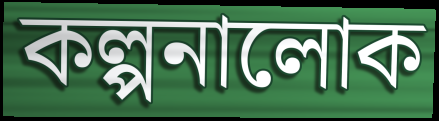
কল্পনালোক